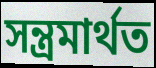
সন্ত্ৰমাৰ্থত